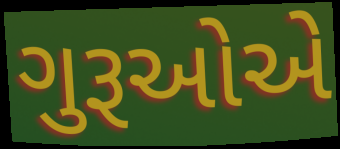
ગુરૂઓએ